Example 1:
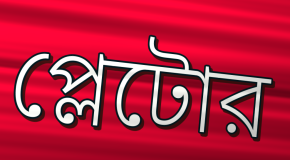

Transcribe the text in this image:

প্লেটোর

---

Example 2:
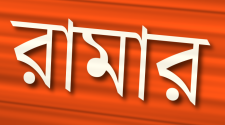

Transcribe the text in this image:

রামার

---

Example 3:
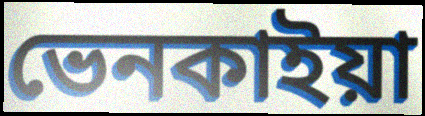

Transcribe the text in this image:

ভেনকাইয়া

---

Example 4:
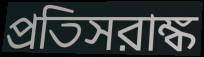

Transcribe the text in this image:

প্রতিসরাঙ্ক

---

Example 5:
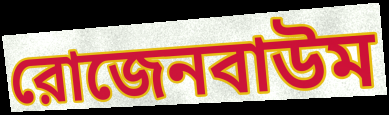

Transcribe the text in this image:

রোজেনবাউম